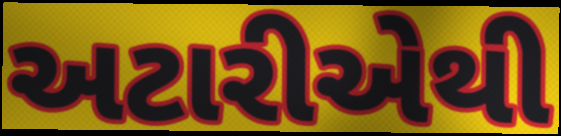
અટારીએથી